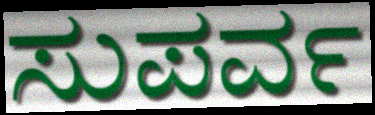
ಸುಪರ್ವ